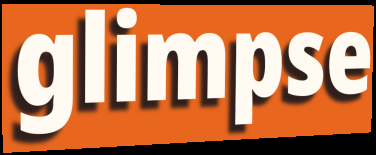
glimpse